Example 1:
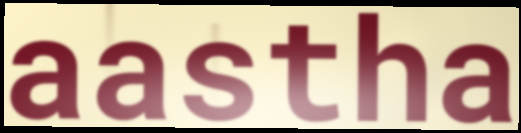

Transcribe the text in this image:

aastha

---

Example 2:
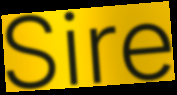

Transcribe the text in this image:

Sire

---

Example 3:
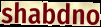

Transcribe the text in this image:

shabdno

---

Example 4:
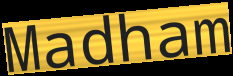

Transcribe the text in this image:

Madham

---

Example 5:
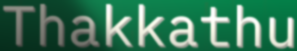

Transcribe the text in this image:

Thakkathu